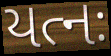
યત્નઃ